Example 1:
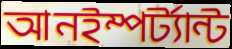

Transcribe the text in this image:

আনইম্পর্ট্যান্ট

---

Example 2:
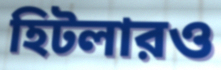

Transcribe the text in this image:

হিটলারও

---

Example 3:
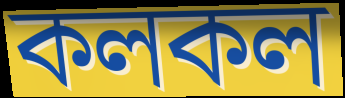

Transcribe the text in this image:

কলকল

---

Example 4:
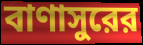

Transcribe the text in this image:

বাণাসুরের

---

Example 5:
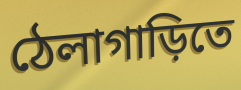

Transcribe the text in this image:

ঠেলাগাড়িতে